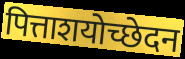
पित्ताशयोच्छेदन